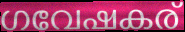
ഗവേഷകര്